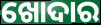
ଖୋଦାର